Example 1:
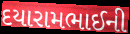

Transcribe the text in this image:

દયારામભાઈની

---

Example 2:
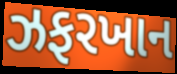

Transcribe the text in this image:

ઝફરખાન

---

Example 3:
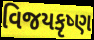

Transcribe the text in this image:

વિજયકૃષ્ણ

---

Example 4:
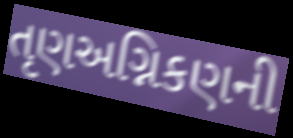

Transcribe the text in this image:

તૃણઅગ્નિકણની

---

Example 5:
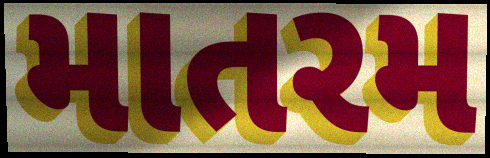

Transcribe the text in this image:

માતરમ